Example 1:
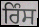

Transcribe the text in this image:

ਰਿੰਸ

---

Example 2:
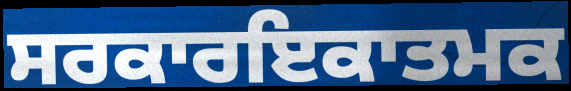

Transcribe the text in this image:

ਸਰਕਾਰਇਕਾਤਮਕ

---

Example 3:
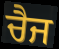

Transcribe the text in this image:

ਚੈਜ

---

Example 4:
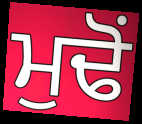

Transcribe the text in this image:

ਮੁਢੋਂ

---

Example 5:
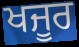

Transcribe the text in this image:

ਖਜੂਰ